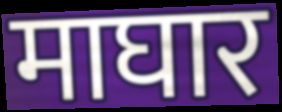
माघार